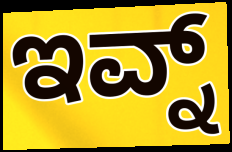
ಇವ್ನ್